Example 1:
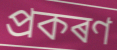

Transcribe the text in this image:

প্ৰকৰণ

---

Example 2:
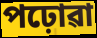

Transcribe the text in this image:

পঢ়োৱা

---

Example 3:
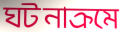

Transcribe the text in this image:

ঘটনাক্ৰমে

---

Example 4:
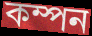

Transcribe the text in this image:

কম্পন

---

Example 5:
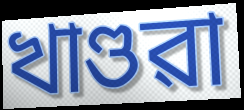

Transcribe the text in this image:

খাণ্ডৱা